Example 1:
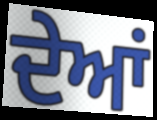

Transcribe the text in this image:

ਦੇਆਂ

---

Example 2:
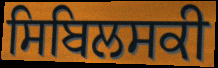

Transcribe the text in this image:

ਸਿਬਿਲਸਕੀ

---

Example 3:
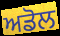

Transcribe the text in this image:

ਅਡੋਲ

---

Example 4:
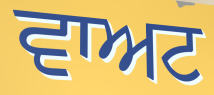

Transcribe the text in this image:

ਵਾਅਟ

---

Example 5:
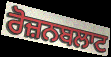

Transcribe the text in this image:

ਰੋਜ਼ਨਬਲਾਟ